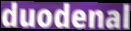
duodenal